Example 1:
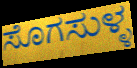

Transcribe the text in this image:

ಸೊಗಸುಳ್ಳ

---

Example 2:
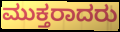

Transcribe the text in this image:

ಮುಕ್ತರಾದರು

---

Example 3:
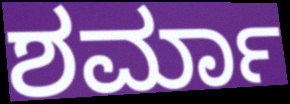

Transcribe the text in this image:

ಶರ್ಮಾ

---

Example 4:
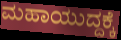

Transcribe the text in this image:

ಮಹಾಯುದ್ದಕ್ಕೆ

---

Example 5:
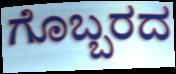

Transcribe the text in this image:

ಗೊಬ್ಬರದ